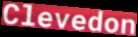
Clevedon